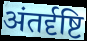
अंतर्दृष्टि